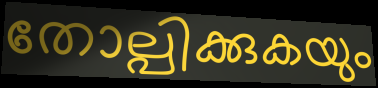
തോല്പിക്കുകയും